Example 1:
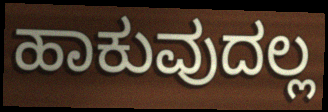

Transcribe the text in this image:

ಹಾಕುವುದಲ್ಲ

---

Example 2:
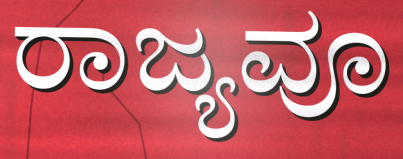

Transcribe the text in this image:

ರಾಜ್ಯವೂ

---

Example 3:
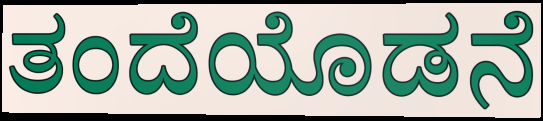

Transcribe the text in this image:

ತಂದೆಯೊಡನೆ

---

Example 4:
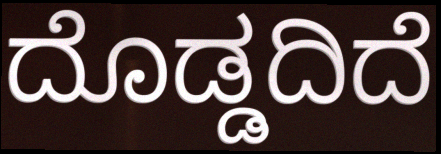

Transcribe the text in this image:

ದೊಡ್ಡದಿದೆ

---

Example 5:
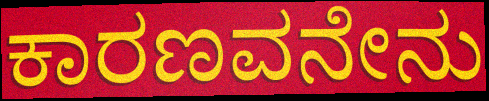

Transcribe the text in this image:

ಕಾರಣವನೇನು